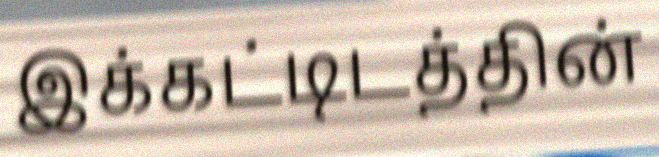
இக்கட்டிடத்தின்